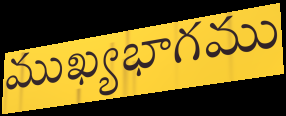
ముఖ్యభాగము